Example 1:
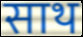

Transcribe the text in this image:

साथ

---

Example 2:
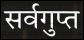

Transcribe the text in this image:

सर्वगुप्त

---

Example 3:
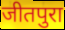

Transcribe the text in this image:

जीतपुरा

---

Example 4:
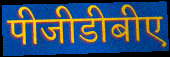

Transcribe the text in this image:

पीजीडीबीए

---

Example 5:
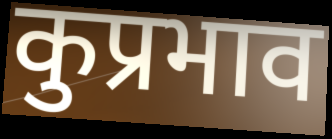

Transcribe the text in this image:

कुप्रभाव